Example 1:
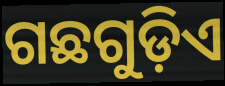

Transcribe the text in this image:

ଗଛଗୁଡ଼ିଏ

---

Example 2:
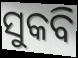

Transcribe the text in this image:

ସୁକବି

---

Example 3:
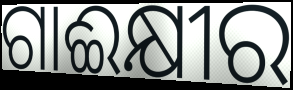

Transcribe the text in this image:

ଗାଈକ୍ଷୀର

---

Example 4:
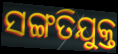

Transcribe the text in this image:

ସଙ୍ଗତିଯୁକ୍ତ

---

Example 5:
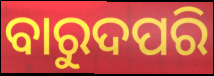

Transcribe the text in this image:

ବାରୁଦପରି